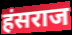
हंसराज